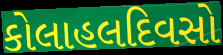
કોલાહલદિવસો